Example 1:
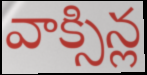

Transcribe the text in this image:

వాక్సిన్ల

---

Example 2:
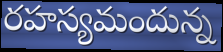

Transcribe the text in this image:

రహస్యమందున్న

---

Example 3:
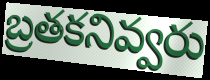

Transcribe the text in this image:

బ్రతకనివ్వరు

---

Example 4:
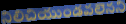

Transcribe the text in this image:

నిలిచియుండవలెనని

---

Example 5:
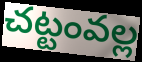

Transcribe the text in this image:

చట్టంవల్ల